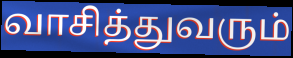
வாசித்துவரும்